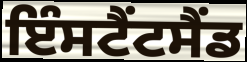
ਇੰਸਟੈਂਟਸੈਂਡ